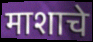
माशाचे